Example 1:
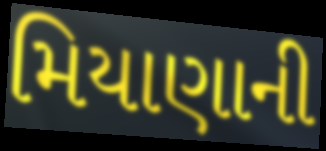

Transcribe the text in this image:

મિયાણાની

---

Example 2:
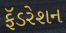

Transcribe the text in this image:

ફૅડરેશન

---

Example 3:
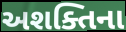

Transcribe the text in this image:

અશક્તિના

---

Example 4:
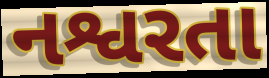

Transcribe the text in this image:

નશ્વરતા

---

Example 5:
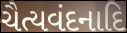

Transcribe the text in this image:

ચૈત્યવંદનાદિ